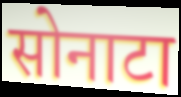
सोनाटा